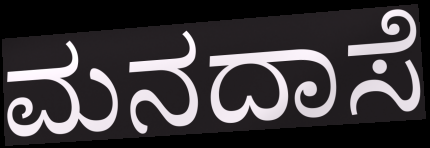
ಮನದಾಸೆ